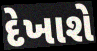
દેખાશે